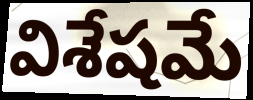
విశేషమే